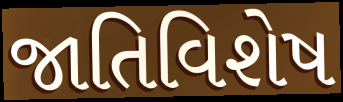
જાતિવિશેષ